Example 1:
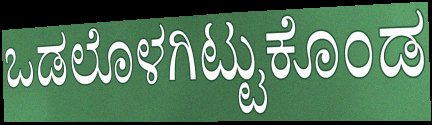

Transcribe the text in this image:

ಒಡಲೊಳಗಿಟ್ಟುಕೊಂಡ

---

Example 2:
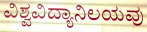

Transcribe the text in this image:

ವಿಶ್ವವಿದ್ಯಾನಿಲಯವು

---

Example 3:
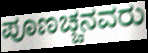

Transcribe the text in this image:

ಪೂಣಚ್ಚನವರು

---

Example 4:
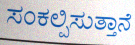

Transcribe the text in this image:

ಸಂಕಲ್ಪಿಸುತ್ತಾನೆ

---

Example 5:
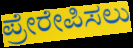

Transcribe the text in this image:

ಪ್ರೇರೇಪಿಸಲು